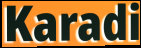
Karadi